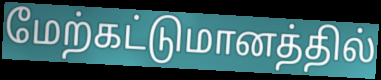
மேற்கட்டுமானத்தில்